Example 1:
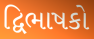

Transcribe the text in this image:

દ્વિભાષકો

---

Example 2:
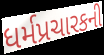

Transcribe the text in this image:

ધર્મપ્રચારકની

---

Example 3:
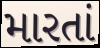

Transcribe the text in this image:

મારતાં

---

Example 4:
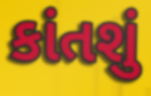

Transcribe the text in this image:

કાંતશું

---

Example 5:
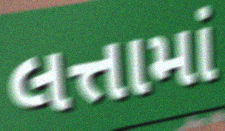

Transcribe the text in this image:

લત્તામાં